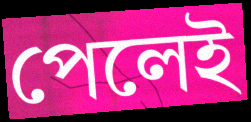
পেলেই